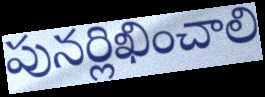
పునర్లిఖించాలి